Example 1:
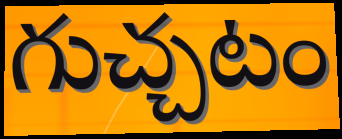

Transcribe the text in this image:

గుచ్చటం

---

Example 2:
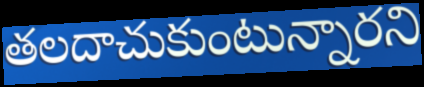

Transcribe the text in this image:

తలదాచుకుంటున్నారని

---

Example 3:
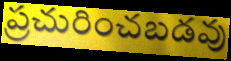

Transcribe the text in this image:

ప్రచురించబడవు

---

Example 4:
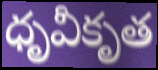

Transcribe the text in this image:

ధృవీకృత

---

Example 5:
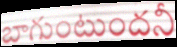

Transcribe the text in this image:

బాగుంటుందనీ